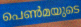
പെൺമയുടെ